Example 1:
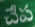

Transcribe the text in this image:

చేప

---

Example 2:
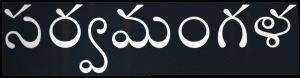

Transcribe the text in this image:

సర్వమంగళ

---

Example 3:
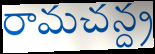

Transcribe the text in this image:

రామచన్ద్ర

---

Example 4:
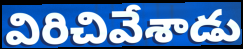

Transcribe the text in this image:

విరిచివేశాడు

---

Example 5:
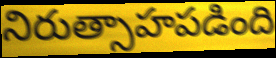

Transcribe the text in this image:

నిరుత్సాహపడింది